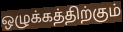
ஒழுக்கத்திற்கும்